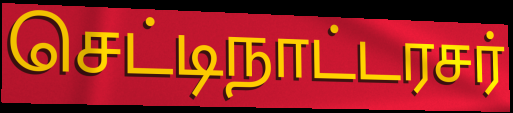
செட்டிநாட்டரசர்